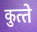
कुत्‍ते